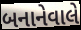
બનાનેવાલે